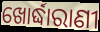
ଖୋର୍ଦ୍ଧାରାଣୀ